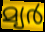
മ്യർ